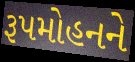
રૂપમોહનને